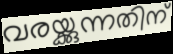
വരയ്ക്കുന്നതിന്